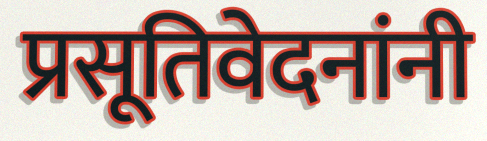
प्रसूतिवेदनांनी